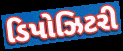
ડિપોઝિટરી